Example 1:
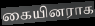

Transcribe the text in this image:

கையினராக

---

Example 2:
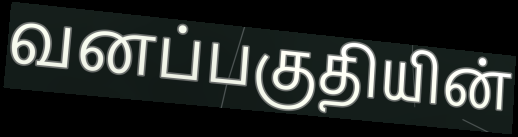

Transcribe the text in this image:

வனப்பகுதியின்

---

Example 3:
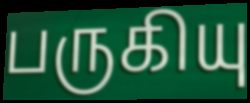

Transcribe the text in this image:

பருகியு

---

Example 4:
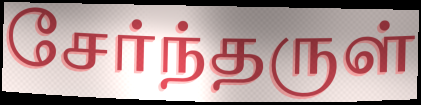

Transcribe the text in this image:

சேர்ந்தருள்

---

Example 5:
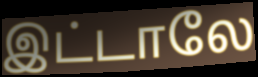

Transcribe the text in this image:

இட்டாலே